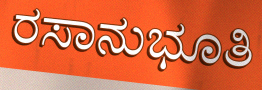
ರಸಾನುಭೂತಿ